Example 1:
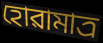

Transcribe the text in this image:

হোৱামাত্ৰ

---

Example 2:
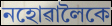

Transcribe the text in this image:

নহোৱালৈকে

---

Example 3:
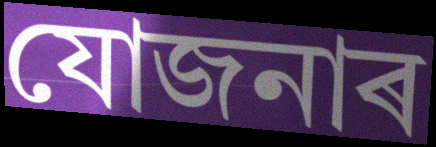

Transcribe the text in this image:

যোজনাৰ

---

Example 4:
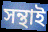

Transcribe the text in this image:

সন্থাই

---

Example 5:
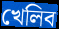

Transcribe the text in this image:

খেলিব